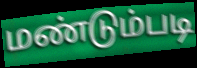
மண்டும்படி